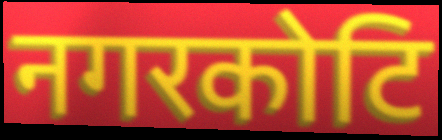
नगरकोटि